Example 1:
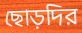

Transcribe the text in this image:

ছোড়দির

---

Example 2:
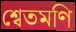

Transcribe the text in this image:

শ্বেতমণি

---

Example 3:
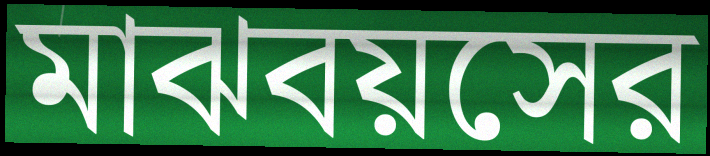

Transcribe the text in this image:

মাঝবয়সের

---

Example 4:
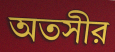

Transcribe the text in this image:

অতসীর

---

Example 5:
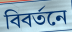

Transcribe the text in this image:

বিবর্তনে